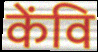
केंवि